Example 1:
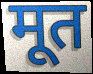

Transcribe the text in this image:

मूत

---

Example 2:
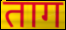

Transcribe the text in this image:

ताग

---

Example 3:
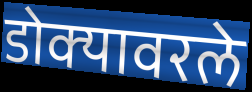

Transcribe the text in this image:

डोक्यावरले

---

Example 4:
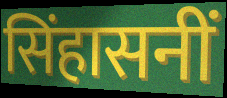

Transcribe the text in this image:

सिंहासनीं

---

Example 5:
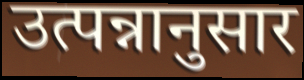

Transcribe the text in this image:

उत्पन्नानुसार